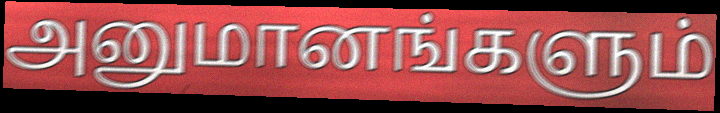
அனுமானங்களும்